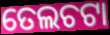
ତେଲଚଟା